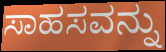
ಸಾಹಸವನ್ನು